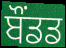
ਬੌਂਡਡ